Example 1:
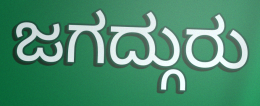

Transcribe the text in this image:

ಜಗದ್ಗುರು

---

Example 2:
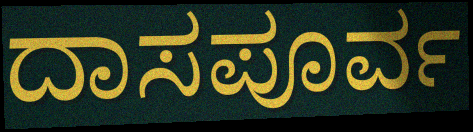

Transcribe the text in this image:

ದಾಸಪೂರ್ವ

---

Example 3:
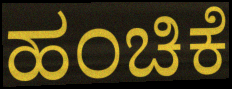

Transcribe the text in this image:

ಹಂಚಿಕೆ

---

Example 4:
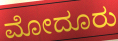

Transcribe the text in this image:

ಮೋದೂರು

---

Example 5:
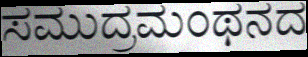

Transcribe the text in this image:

ಸಮುದ್ರಮಂಥನದ